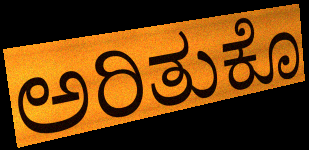
ಅರಿತುಕೊ